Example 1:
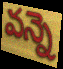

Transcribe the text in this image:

వన్నె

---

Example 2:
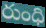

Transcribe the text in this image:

రుంధి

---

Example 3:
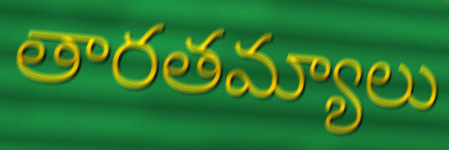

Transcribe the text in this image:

తారతమ్యాలు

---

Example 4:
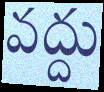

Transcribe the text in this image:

వద్దు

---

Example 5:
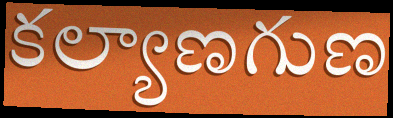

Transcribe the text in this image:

కల్యాణగుణ